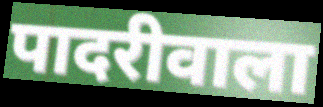
पादरीवाला